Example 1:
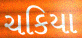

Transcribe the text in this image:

ચકિયા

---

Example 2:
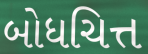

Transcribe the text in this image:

બોધચિત્ત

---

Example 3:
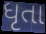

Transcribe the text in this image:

ધૃતા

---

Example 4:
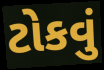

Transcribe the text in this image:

ટોકવું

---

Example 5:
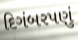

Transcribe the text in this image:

દિગંબરપણું